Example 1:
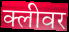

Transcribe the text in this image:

क्लीवर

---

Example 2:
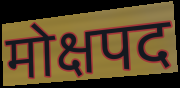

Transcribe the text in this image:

मोक्षपद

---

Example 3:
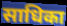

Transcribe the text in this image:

साधिका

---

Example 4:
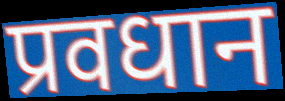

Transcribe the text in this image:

प्रवधान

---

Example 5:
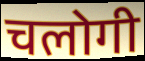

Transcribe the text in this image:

चलोगी